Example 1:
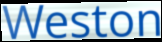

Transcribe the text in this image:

Weston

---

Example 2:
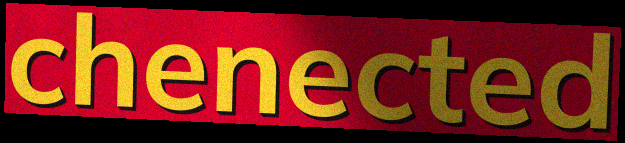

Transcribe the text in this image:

chenected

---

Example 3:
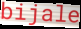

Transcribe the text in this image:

bijale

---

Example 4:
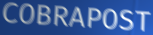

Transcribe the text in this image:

COBRAPOST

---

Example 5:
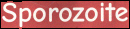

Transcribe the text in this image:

Sporozoite